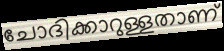
ചോദിക്കാറുള്ളതാണ്